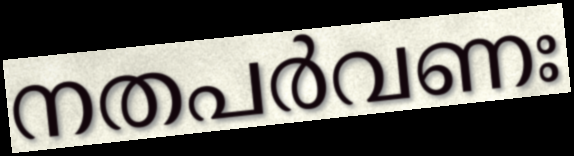
നതപർവണഃ